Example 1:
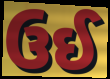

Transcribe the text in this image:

ઉઈ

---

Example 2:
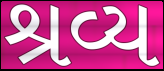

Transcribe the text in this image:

શ્રવ્ય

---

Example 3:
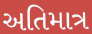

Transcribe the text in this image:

અતિમાત્ર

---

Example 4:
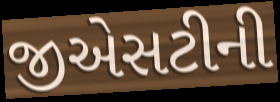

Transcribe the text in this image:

જીએસટીની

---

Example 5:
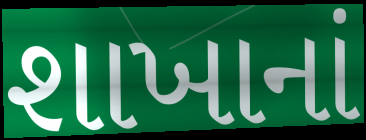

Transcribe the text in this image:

શાખાનાં